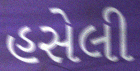
હસેલી